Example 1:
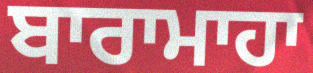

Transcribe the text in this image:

ਬਾਰਾਮਾਹਾ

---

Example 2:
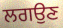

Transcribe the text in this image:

ਲਗਉਣ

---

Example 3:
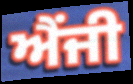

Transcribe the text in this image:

ਐਂਜੀ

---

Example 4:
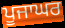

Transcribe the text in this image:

ਪੂਜਾਘਰ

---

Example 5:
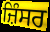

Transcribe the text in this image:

ਜ਼ਿੰਸਰ